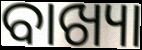
ବାଖ୍ୟା